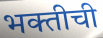
भक्तीची